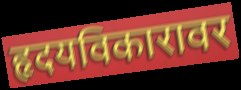
हृदयविकारावर